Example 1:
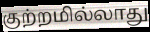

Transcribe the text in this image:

குற்றமில்லாது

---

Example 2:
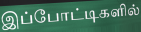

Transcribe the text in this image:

இப்போட்டிகளில்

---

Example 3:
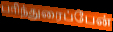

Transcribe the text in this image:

பரிந்துரைப்பேன்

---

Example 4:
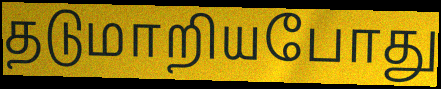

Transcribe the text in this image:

தடுமாறியபோது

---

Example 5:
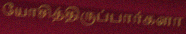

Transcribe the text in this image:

யோசித்திருப்பார்களா